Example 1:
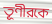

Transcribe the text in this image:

তূণীরকে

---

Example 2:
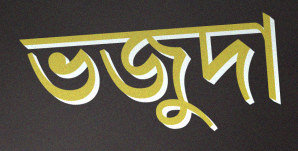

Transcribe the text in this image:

ভজুদা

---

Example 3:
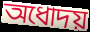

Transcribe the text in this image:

অধোদয়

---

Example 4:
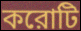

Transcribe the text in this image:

করোটি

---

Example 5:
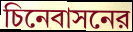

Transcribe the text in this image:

চিনেবাসনের